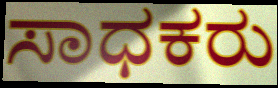
ಸಾಧಕರು